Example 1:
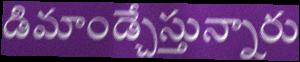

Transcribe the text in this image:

డిమాండ్చేస్తున్నారు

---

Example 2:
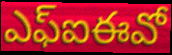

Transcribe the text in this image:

ఎఫ్ఐఈవో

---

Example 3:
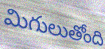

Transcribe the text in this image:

మిగులుతోంది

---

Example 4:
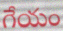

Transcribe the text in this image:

గేయం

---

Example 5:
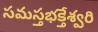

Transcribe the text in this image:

సమస్తభక్తేశ్వరి